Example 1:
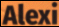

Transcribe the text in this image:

Alexi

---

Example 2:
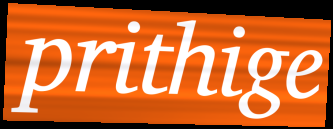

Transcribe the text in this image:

prithige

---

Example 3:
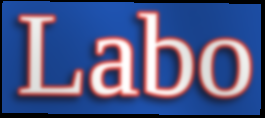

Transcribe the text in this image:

Labo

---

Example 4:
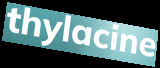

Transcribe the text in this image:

thylacine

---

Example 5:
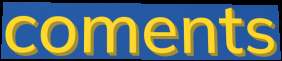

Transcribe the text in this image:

coments